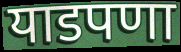
याडपणा